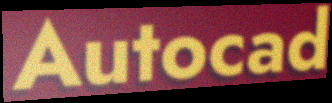
Autocad